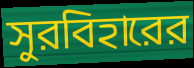
সুরবিহারের